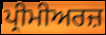
ਪ੍ਰੀਮੀਅਰਜ਼